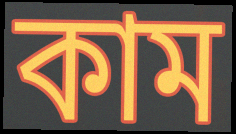
কাম